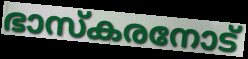
ഭാസ്കരനോട്